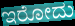
ಇರೋದು